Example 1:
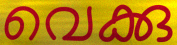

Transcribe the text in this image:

വെക്കു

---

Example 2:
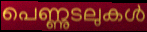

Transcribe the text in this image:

പെണ്ണുടലുകൾ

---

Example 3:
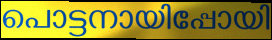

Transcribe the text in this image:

പൊട്ടനായിപ്പോയി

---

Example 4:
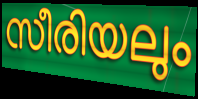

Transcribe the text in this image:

സീരിയലും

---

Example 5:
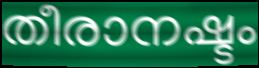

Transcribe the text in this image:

തീരാനഷ്ടം